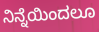
ನಿನ್ನೆಯಿಂದಲೂ